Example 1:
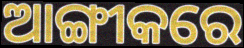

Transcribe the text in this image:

ଆଙ୍ଗୀକରେ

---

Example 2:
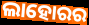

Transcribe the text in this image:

ଲାହୋରର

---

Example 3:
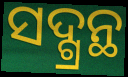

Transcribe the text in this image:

ସଦ୍ଗ୍ରନ୍ଥ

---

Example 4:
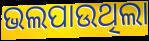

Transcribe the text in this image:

ଭଲପାଉଥିଲା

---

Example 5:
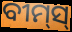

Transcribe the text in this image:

ବୀମ୍‌ସ୍